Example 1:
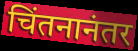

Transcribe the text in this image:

चिंतनानंतर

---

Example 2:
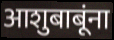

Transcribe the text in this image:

आशुबाबूंना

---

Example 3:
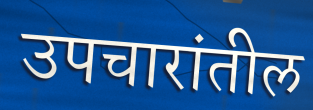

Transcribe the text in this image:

उपचारांतील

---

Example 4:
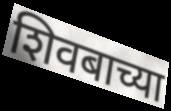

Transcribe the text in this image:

शिवबाच्या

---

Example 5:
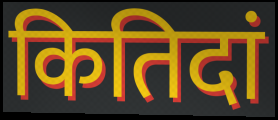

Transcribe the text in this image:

कितिदां